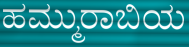
ಹಮ್ಮುರಾಬಿಯ